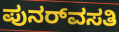
ಪುನರ್‌ವಸತಿ